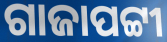
ଗାଜାପଟ୍ଟୀ